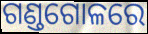
ଗଣ୍ଡଗୋଳରେ